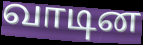
வாடின